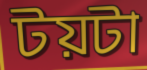
টয়টা